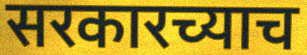
सरकारच्याच